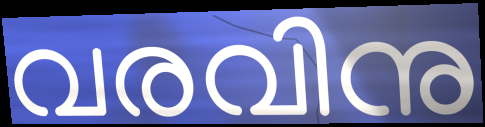
വരവിനു